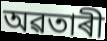
অৱতাৰী